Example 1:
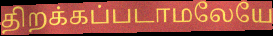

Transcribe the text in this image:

திறக்கப்படாமலேயே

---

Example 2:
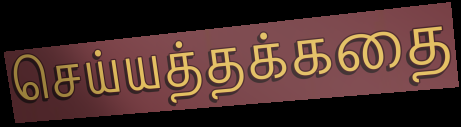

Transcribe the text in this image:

செய்யத்தக்கதை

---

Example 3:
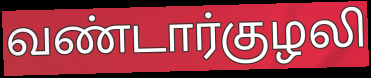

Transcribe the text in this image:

வண்டார்குழலி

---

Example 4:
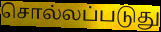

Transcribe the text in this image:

சொல்லப்படுது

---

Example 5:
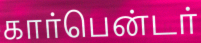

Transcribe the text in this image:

கார்பென்டர்